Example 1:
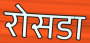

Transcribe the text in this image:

रोसडा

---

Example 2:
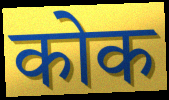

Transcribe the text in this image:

कोक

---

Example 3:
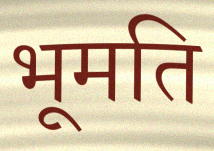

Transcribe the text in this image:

भूमति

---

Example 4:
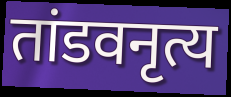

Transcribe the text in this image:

तांडवनृत्य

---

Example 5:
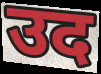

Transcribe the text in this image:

उद